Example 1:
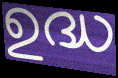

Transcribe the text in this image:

ഉദ്ധ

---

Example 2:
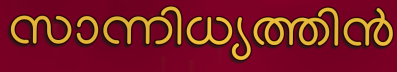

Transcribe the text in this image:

സാന്നിധ്യത്തിൻ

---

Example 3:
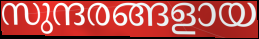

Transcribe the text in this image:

സുന്ദരങ്ങളായ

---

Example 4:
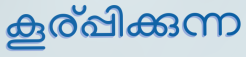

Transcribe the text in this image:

കൂര്പ്പിക്കുന്ന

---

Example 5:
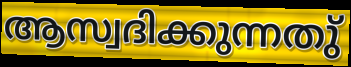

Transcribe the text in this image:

ആസ്വദിക്കുന്നതു്